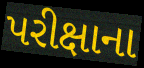
પરીક્ષાના